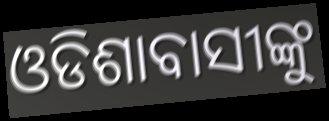
ଓଡିଶାବାସୀଙ୍କୁ